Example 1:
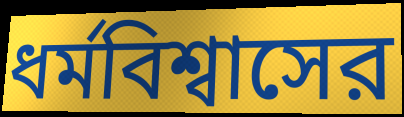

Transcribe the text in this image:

ধর্মবিশ্বাসের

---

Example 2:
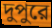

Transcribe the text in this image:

দুপুরে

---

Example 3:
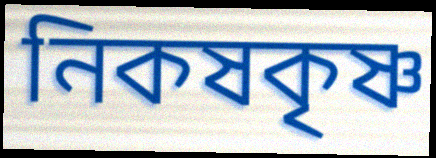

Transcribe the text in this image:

নিকষকৃষ্ণ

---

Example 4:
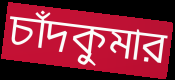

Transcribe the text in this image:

চাঁদকুমার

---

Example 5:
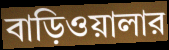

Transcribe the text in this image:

বাড়িওয়ালার